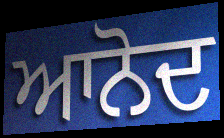
ਆਨੋਦ